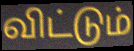
விட்டும்